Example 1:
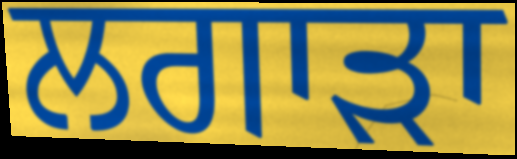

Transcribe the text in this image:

ਲਗਾੜਾ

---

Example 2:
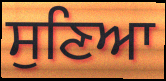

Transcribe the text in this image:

ਸੁਣਿਆ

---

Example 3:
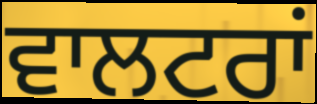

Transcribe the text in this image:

ਵਾਲਟਰਾਂ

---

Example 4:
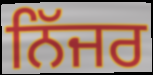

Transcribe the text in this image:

ਨਿੱਜਰ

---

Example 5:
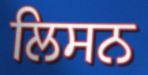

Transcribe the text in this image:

ਲਿਸਨ